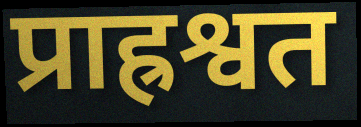
प्राह्रश्वत